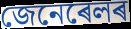
জেনেৰেলৰ